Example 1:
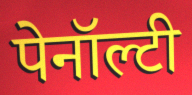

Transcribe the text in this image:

पेनॉल्टी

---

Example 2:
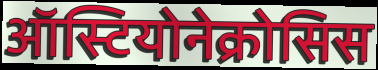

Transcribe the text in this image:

ऑस्टियोनेक्रोसिस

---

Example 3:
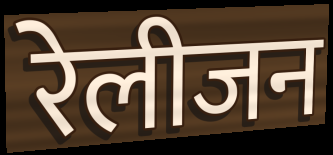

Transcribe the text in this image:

रेलीजन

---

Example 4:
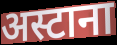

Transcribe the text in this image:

अस्टाना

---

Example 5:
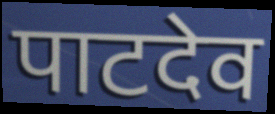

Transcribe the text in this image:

पाटदेव